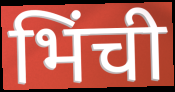
भिंची